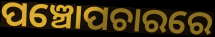
ପଞ୍ଚୋପଚାରରେ